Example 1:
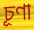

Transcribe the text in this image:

চূণা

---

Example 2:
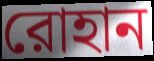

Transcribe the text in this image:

রোহান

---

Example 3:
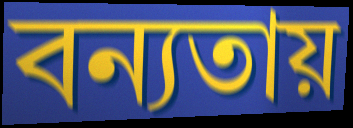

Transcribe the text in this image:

বন্যতায়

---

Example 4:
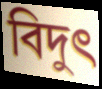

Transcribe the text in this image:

বিদুৎ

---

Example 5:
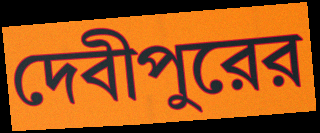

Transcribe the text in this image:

দেবীপুরের